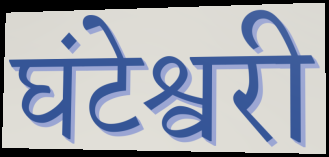
घंटेश्वरी